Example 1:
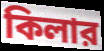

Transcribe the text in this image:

কিলার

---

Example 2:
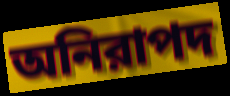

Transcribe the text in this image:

অনিরাপদ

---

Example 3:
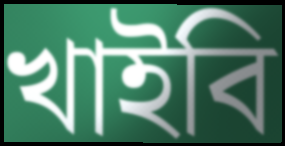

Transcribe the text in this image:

খাইবি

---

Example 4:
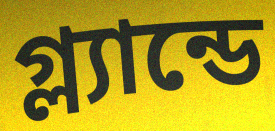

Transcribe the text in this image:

গ্ল্যান্ডে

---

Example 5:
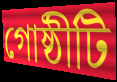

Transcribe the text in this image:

গোষ্ঠীটি